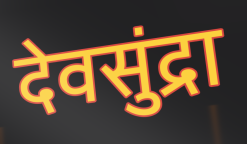
देवसुंद्रा